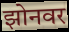
झोनवर